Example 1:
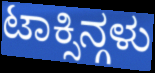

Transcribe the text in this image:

ಟಾಕ್ಸಿನ್ಗಳು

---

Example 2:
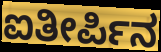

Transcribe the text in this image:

ಐತೀರ್ಪಿನ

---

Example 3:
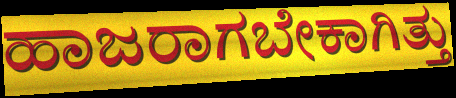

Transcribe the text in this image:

ಹಾಜರಾಗಬೇಕಾಗಿತ್ತು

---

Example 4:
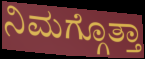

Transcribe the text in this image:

ನಿಮಗ್ಗೊತ್ತಾ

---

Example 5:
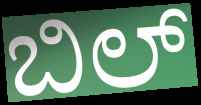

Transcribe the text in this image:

ಬಿಲ್